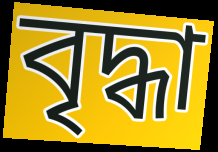
বৃদ্ধা